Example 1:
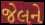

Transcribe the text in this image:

જેલને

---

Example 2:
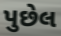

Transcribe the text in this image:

પુછેલ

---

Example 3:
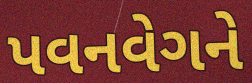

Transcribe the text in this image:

પવનવેગને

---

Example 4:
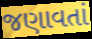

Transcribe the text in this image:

જણાવતાં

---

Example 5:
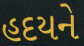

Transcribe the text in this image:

હદયને